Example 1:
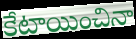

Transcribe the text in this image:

కేటాయించినా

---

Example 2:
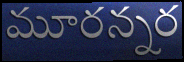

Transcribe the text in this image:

మూరన్నర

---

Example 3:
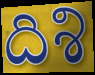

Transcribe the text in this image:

దిశి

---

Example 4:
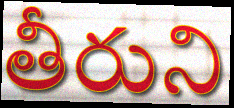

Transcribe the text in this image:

తీరుని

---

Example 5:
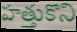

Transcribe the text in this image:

హత్తుకొని